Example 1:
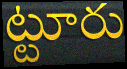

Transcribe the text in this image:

ట్టూరు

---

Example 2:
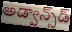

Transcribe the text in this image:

అడ్వాన్స్‌డ్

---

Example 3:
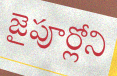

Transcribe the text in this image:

జైపూర్లోని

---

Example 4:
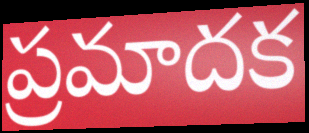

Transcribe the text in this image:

ప్రమాదక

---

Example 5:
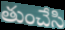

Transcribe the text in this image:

తుంచేసి